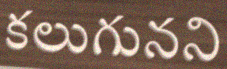
కలుగునని